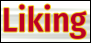
Liking